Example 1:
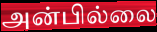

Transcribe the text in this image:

அன்பில்லை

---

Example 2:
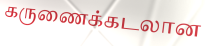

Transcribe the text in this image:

கருணைக்கடலான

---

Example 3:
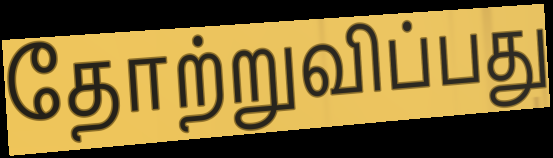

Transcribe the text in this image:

தோற்றுவிப்பது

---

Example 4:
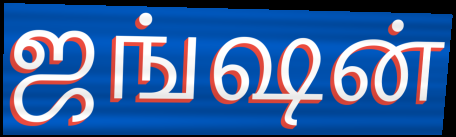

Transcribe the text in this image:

ஜங்ஷன்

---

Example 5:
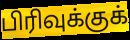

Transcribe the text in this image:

பிரிவுக்குக்